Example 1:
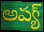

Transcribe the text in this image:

అప్య్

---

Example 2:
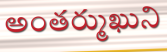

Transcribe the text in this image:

అంతర్ముఖుని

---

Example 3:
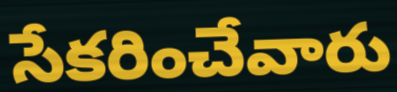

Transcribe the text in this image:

సేకరించేవారు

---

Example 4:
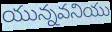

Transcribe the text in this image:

యున్నవనియు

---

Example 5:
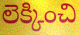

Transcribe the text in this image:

లెక్కించి